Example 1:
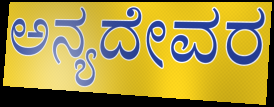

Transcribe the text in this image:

ಅನ್ಯದೇವರ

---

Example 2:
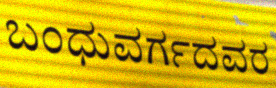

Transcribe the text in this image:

ಬಂಧುವರ್ಗದವರ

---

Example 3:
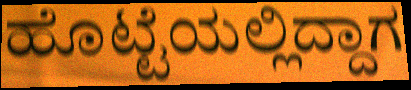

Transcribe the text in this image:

ಹೊಟ್ಟೆಯಲ್ಲಿದ್ದಾಗ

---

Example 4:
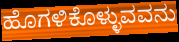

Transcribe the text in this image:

ಹೊಗಳಿಕೊಳ್ಳುವವನು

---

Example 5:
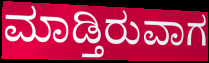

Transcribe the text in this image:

ಮಾಡ್ತಿರುವಾಗ